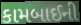
કામબાઈની